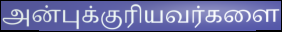
அன்புக்குரியவர்களை